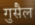
गुसैल